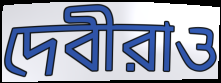
দেবীরাও